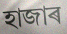
হাজাৰ